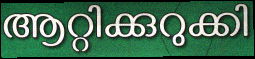
ആറ്റിക്കുറുക്കി